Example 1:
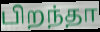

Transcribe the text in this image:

பிறந்தா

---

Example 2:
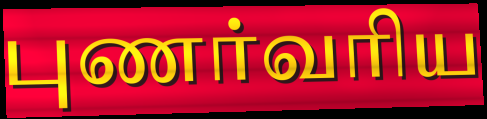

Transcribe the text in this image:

புணர்வரிய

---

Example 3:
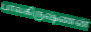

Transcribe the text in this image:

பாலகிருஷ்ணன்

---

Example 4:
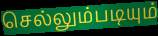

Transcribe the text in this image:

செல்லும்படியும்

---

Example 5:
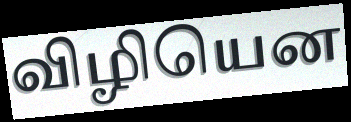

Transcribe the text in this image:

விழியென